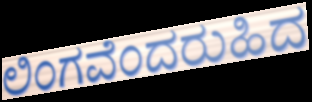
ಲಿಂಗವೆಂದರುಹಿದ